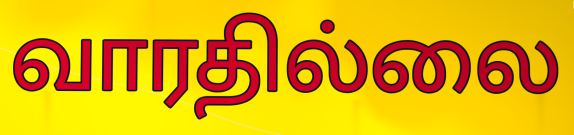
வாரதில்லை